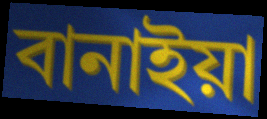
বানাইয়া